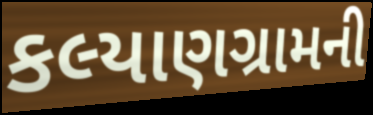
કલ્યાણગ્રામની